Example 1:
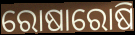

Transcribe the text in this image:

ରୋଷାରୋଷି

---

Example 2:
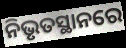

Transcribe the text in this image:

ନିଭୃତସ୍ଥାନରେ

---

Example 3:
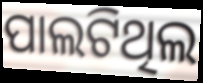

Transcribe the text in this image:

ପାଲଟିଥିଲ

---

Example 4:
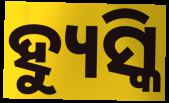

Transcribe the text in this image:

ହ୍ୟୁସ୍କି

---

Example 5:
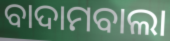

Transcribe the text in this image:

ବାଦାମବାଲା